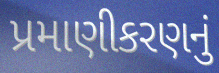
પ્રમાણીકરણનું